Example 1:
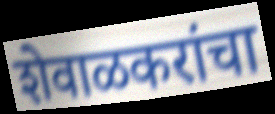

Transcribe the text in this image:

शेवाळकरांचा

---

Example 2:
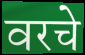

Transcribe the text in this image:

वरचे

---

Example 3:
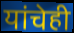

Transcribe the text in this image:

यांचेही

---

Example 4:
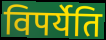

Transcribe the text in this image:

विपर्येति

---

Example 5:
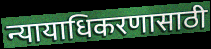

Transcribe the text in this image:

न्यायाधिकरणासाठी